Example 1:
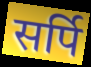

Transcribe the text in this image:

सर्पि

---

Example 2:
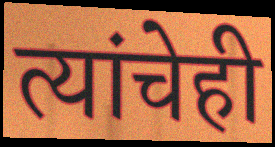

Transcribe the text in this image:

त्यांचेही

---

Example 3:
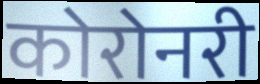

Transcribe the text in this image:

कोरोनरी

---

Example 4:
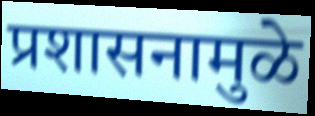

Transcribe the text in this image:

प्रशासनामुळे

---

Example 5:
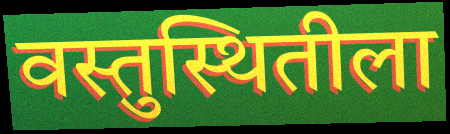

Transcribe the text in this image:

वस्तुस्थितीला